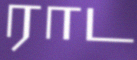
ராட